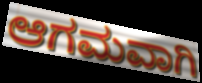
ಆಗಮವಾಗಿ